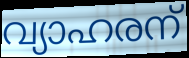
വ്യാഹരന്